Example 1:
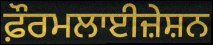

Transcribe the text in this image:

ਫ਼ੌਰਮਲਾਈਜ਼ੇਸ਼ਨ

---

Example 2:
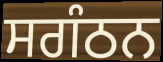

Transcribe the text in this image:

ਸਗੰਠਨ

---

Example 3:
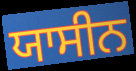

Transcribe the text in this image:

ਯਾਸੀਨ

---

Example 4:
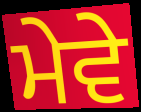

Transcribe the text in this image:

ਮੇਵੇ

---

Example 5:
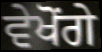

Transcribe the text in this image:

ਵੇਖੋਂਗੇ